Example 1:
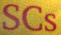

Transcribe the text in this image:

SCs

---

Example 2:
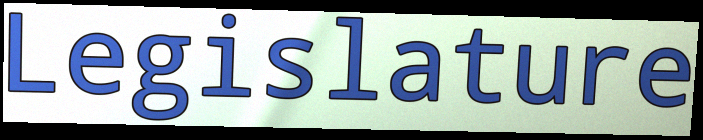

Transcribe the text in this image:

Legislature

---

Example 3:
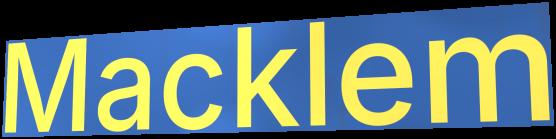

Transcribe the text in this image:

Macklem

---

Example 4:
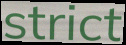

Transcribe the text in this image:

strict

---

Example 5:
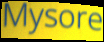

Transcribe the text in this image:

Mysore